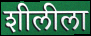
शीलीला